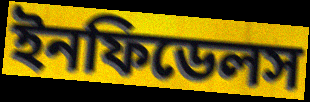
ইনফিডেলস